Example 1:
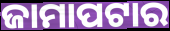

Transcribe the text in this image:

ଜାମାପଟାର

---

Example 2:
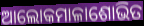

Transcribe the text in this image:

ଆଲୋକମାଳାଶୋଭିତ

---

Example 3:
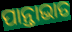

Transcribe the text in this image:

ପାନ୍ତାଭାତ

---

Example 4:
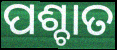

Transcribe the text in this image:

ପଶ୍ଚାତ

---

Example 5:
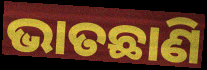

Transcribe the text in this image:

ଭାତଛାଣି